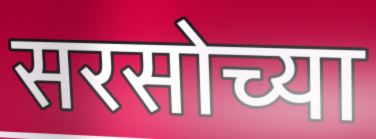
सरसोच्या